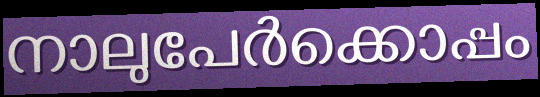
നാലുപേർക്കൊപ്പം